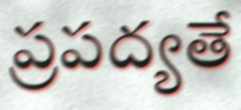
ప్రపద్యతే